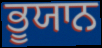
ਭੂਯਾਨ